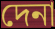
দেনা